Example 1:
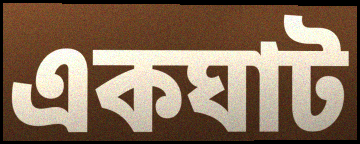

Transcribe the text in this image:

একঘাট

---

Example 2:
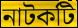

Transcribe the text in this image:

নাটকটি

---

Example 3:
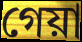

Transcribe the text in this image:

গেয়া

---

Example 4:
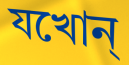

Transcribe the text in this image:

যখোন্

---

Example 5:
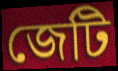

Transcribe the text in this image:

জেটি